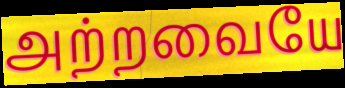
அற்றவையே